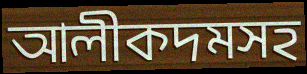
আলীকদমসহ